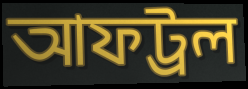
আফট্রল